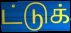
ட்டுக்